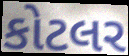
કોટલર